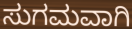
ಸುಗಮವಾಗಿ